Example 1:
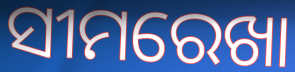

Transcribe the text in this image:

ସୀମରେଖା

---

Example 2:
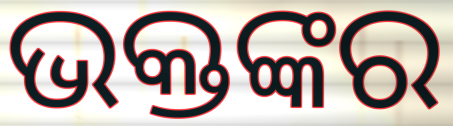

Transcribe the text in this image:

ଭକ୍ତଙ୍କର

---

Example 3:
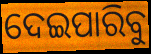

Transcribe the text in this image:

ଦେଇପାରିବୁ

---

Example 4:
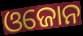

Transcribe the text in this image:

ଓଜୋନ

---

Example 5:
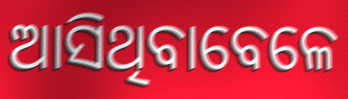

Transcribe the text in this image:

ଆସିଥିବାବେଳେ